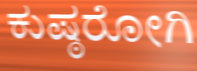
ಕುಷ್ಠರೋಗಿ